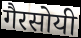
गैरसोयी